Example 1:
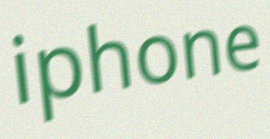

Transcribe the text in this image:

iphone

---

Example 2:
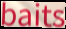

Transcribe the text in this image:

baits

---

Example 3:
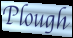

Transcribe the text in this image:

Plough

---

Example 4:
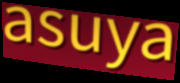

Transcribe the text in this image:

asuya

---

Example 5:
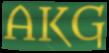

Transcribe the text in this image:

AKG